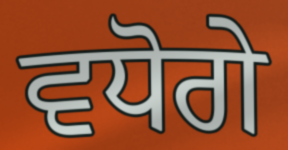
ਵਧੋਗੇ